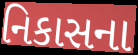
નિકાસના